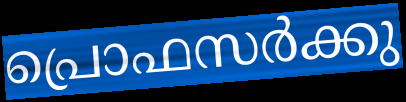
പ്രൊഫസർക്കു